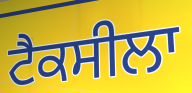
ਟੈਕਸੀਲਾ